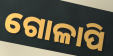
ଗୋଳାପି